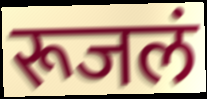
रूजलं